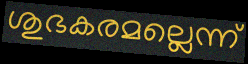
ശുഭകരമല്ലെന്ന്